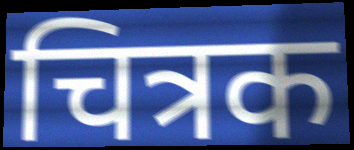
चित्रक